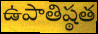
ఉపాతిష్ఠత